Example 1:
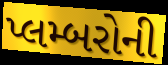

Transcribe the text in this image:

પ્લમ્બરોની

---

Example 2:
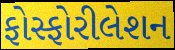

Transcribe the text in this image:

ફોસ્ફોરીલેશન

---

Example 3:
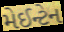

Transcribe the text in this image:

મેઈન્ટેન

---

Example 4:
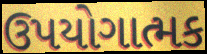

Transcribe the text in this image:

ઉપયોગાત્મક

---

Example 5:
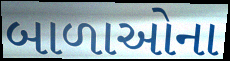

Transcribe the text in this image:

બાળાઓના